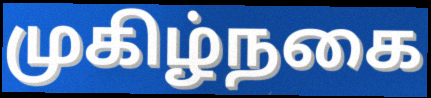
முகிழ்நகை